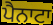
ਪੈਨਾਟਾ